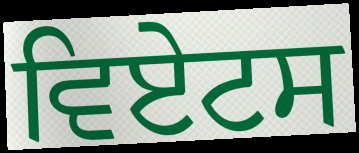
ਵਿਏਟਸ